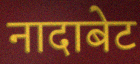
नादाबेट